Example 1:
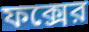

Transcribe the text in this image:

ফক্সের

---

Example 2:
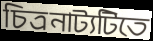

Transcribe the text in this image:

চিত্রনাট্যটিতে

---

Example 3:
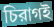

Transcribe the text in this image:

চিরাগই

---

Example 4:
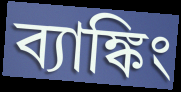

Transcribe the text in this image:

ব্যাঙ্কিং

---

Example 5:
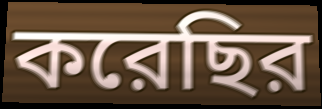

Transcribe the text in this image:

করেছির